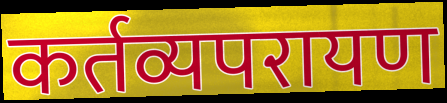
कर्तव्यपरायण